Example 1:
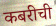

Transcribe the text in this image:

कबरीची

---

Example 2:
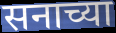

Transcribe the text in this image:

सनाच्या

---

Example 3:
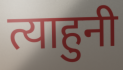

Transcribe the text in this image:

त्याहुनी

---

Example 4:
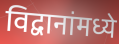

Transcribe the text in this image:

विद्वानांमध्ये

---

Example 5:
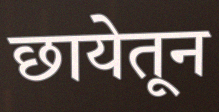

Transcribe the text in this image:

छायेतून